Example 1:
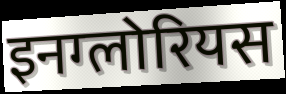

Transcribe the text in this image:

इनग्लोरियस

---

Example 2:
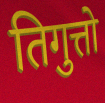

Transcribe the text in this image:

तिगुत्तो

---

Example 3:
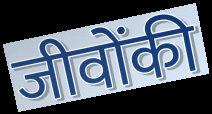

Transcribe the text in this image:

जीवोंकी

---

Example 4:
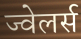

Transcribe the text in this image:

ज्वेलर्स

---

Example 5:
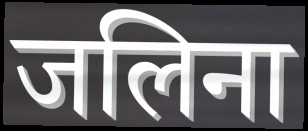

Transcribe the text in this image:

जलिना